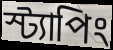
স্ট্যাপিং